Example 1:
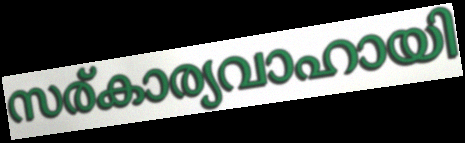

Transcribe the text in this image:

സര്കാര്യവാഹായി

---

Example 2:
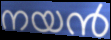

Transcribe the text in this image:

നയൻ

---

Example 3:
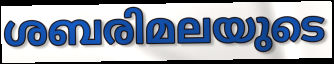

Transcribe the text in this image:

ശബരിമലയുടെ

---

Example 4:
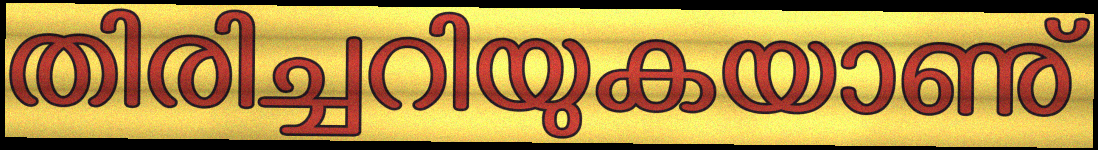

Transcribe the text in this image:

തിരിച്ചറിയുകയാണു്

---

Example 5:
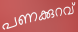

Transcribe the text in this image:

പണക്കുറവ്